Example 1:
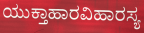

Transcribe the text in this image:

ಯುಕ್ತಾಹಾರವಿಹಾರಸ್ಯ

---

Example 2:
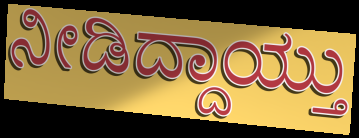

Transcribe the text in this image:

ನೀಡಿದ್ದಾಯ್ತು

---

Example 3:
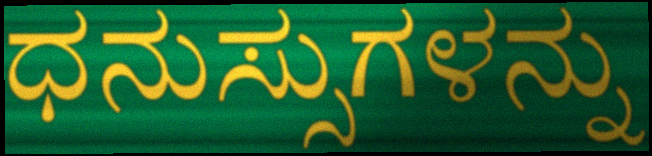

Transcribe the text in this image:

ಧನುಸ್ಸುಗಳನ್ನು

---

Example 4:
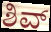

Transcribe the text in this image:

ಶಿವ್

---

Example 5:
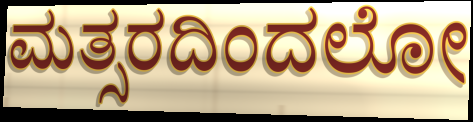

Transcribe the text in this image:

ಮತ್ಸರದಿಂದಲೋ